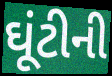
ઘૂંટીની